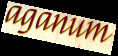
aganum